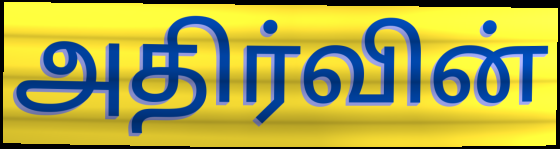
அதிர்வின்